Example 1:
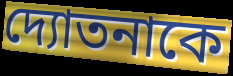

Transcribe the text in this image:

দ্যোতনাকে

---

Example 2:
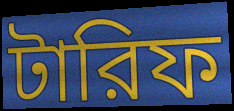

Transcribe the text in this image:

টারিফ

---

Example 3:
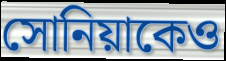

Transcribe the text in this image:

সোনিয়াকেও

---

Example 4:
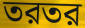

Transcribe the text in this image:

তরতর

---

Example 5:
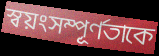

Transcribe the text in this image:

স্বয়ংসম্পূর্ণতাকে